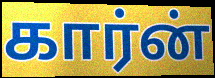
கார்ன்